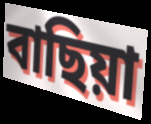
বাছিয়া